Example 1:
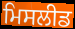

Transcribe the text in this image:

ਮਿਸਲੀਡ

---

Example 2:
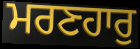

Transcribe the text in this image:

ਮਰਣਹਾਰੁ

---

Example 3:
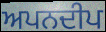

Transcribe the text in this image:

ਅਪਨਦੀਪ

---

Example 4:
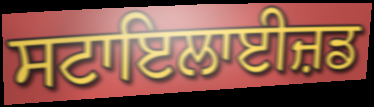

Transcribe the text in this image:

ਸਟਾਇਲਾਈਜ਼ਡ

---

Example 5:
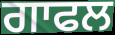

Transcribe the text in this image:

ਗਾਫਲ